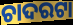
ଚାଦରଟା